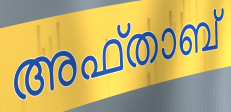
അഫ്താബ്